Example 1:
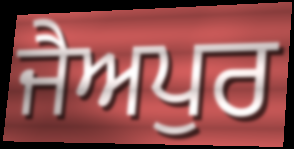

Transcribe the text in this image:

ਜੈਅਪੁਰ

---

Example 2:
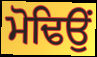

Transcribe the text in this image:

ਮੋਢਿਉਂ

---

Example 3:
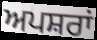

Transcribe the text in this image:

ਅਪਸ਼ਰਾਂ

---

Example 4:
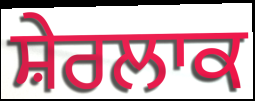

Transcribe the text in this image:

ਸ਼ੇਰਲਾਕ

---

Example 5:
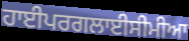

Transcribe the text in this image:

ਹਾਈਪਰਗਲਾਈਸੀਮੀਆ